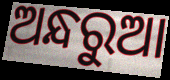
ଅନ୍ଧରୁଆ